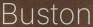
Buston